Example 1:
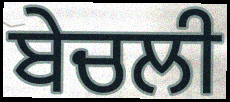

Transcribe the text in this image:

ਬੇਚਲੀ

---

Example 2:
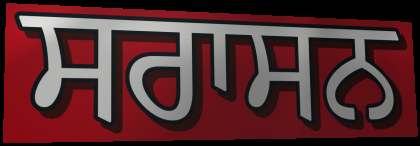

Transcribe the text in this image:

ਸਰਾਸਨ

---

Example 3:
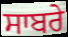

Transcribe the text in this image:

ਸਾਬਰੇ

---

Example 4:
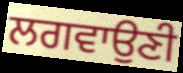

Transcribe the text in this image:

ਲਗਵਾਉਣੀ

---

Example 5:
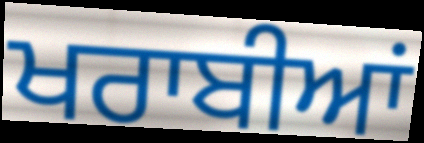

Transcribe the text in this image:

ਖਰਾਬੀਆਂ